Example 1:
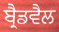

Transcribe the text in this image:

ਬ੍ਰੈਡਵੈਲ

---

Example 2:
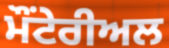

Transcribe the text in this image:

ਮੌਂਟੇਰੀਅਲ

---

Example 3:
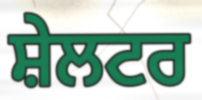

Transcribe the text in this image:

ਸ਼ੇਲਟਰ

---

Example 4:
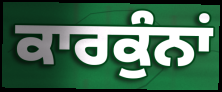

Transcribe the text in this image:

ਕਾਰਕੁੰਨਾਂ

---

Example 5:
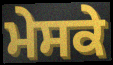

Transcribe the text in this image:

ਮੇਸਕੇ